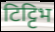
टिट्टिभ